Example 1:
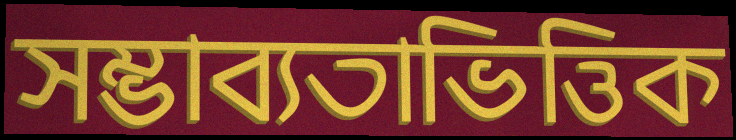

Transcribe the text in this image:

সম্ভাব্যতাভিত্তিক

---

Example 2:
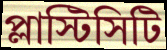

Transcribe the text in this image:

প্লাস্টিসিটি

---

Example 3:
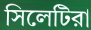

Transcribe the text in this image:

সিলেটিরা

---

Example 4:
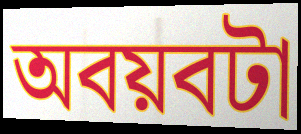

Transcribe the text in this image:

অবয়বটা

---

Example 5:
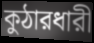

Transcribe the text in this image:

কুঠারধারী